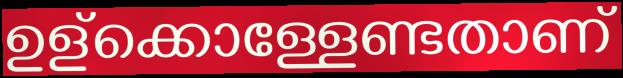
ഉള്ക്കൊള്ളേണ്ടതാണ്